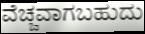
ವೆಚ್ಚವಾಗಬಹುದು